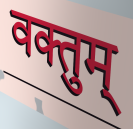
वक्तुम्